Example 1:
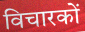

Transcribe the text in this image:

विचारकों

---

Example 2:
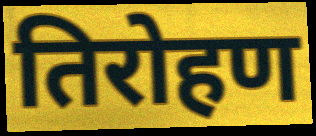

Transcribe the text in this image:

तिरोहण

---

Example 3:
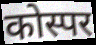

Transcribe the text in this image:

कोस्पर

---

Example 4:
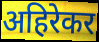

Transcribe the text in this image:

अहिरेकर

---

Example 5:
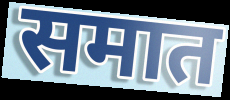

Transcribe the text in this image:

समात